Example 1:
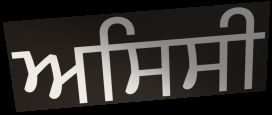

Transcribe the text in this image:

ਅਸਿਸੀ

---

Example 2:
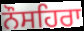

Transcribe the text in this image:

ਨੌਸਹਿਰਾ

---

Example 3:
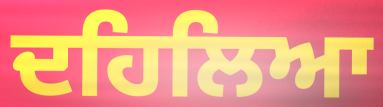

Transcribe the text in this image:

ਦਹਿਲਿਆ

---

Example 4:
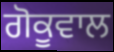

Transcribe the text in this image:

ਗੋਕੂਵਾਲ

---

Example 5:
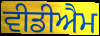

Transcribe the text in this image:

ਵੀਡੀਐਮ